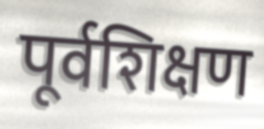
पूर्वशिक्षण